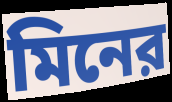
মিনের